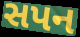
સપન